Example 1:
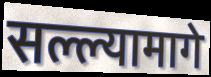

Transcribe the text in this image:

सल्ल्यामागे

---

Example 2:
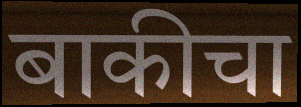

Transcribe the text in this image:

बाकीचा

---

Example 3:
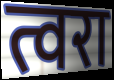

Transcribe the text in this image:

त्वरा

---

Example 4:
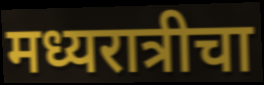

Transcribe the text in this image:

मध्यरात्रीचा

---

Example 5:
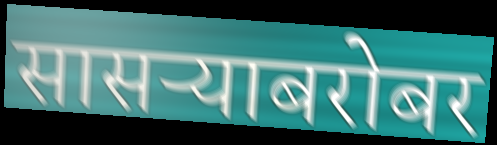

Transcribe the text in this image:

सासऱ्याबरोबर